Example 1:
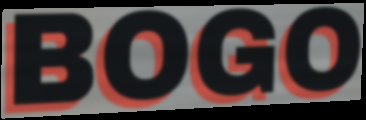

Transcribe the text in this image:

BOGO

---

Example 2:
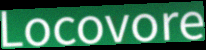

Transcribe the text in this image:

Locovore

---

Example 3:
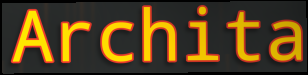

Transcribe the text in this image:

Archita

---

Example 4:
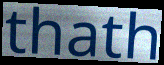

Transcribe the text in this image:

thath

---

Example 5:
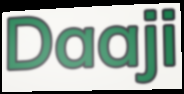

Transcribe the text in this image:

Daaji